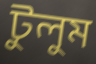
টুলুম